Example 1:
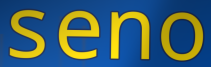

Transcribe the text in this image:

seno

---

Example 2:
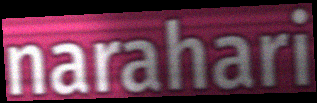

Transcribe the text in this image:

narahari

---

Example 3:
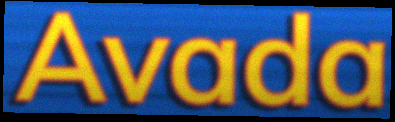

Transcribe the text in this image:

Avada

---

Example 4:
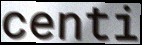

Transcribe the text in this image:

centi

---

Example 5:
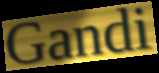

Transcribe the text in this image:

Gandi